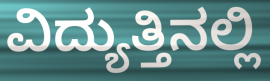
ವಿದ್ಯುತ್ತಿನಲ್ಲಿ